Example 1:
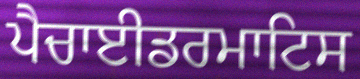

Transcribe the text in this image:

ਪੈਚਾਈਡਰਮਾਟਿਸ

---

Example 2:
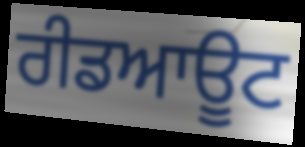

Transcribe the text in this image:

ਰੀਡਆਊਟ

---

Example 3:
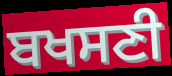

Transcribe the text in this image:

ਬਖਸਣੀ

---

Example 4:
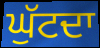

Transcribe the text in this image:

ਘੁੱਟਦਾ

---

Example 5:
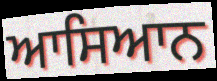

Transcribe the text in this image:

ਆਸਿਆਨ